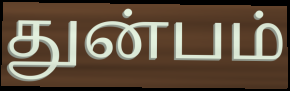
துன்பம்